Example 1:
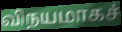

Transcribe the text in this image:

விநயமாகச்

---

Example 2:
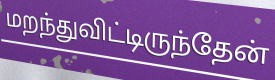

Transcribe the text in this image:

மறந்துவிட்டிருந்தேன்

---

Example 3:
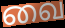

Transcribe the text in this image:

வை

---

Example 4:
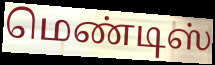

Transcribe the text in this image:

மெண்டிஸ்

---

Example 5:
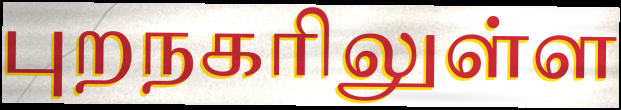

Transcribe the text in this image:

புறநகரிலுள்ள